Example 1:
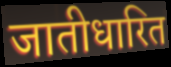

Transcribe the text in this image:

जातीधारित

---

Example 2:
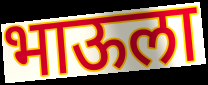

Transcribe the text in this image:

भाऊला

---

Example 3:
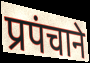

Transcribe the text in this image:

प्रपंचाने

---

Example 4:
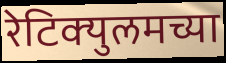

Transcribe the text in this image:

रेटिक्युलमच्या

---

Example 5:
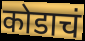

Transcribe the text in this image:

कोडाचं